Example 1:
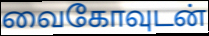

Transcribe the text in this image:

வைகோவுடன்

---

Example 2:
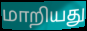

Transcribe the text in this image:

மாறியது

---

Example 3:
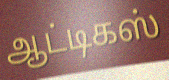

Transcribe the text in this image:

ஆட்டிகஸ்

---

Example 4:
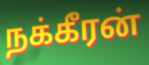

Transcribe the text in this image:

நக்கீரன்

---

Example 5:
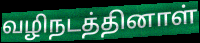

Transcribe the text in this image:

வழிநடத்தினாள்